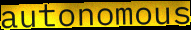
autonomous